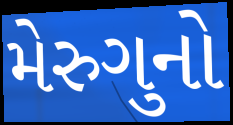
મેરુગુનો